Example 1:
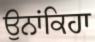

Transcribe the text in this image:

ਉਨਾਂਕਿਹਾ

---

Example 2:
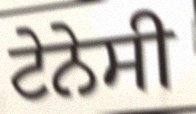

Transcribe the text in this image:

ਟੇਨੇਸੀ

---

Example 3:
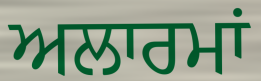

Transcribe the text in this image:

ਅਲਾਰਮਾਂ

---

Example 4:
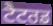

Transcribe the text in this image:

ਟੈਟਰਡ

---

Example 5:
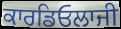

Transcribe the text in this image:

ਕਾਰਡਿਓਲਾਜੀ